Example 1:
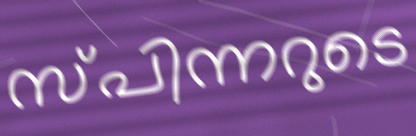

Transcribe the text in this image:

സ്പിന്നറുടെ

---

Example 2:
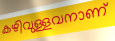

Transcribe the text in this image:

കഴിവുള്ളവനാണ്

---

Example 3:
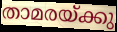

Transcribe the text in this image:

താമരയ്ക്കു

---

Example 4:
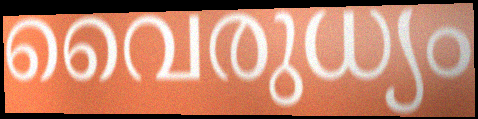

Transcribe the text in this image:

വൈരുധ്യം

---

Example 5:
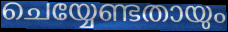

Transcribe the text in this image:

ചെയ്യേണ്ടതായും